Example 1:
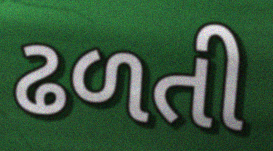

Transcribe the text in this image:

ઢળતી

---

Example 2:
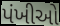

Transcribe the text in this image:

પંખીઓ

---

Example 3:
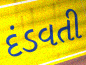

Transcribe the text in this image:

દંડવતી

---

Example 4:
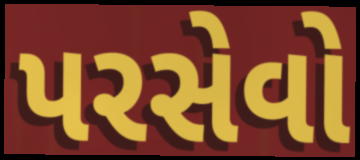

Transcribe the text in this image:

પરસેવો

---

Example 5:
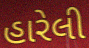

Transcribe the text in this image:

હારેલી